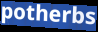
potherbs